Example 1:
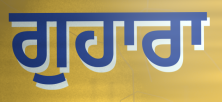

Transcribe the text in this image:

ਗੁਹਾਰਾ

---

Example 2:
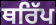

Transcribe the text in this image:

ਥਰਿੱਪ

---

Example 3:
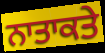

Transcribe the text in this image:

ਨਾਤਾਕਤੇ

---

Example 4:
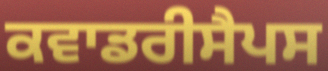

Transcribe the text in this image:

ਕਵਾਡਰੀਸੈਪਸ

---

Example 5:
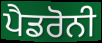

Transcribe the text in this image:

ਪੈਡਰੋਨੀ